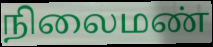
நிலைமண்